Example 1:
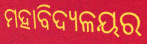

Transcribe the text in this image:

ମହାବିଦ୍ୟଳୟର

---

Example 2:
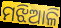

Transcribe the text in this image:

ମଝିଆଳି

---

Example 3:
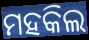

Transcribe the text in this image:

ମହକିଲ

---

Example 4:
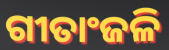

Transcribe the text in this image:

ଗୀତାଂଜଳି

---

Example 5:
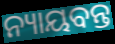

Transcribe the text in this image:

ନ୍ୟାୟବନ୍ତ